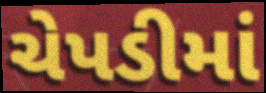
ચેપડીમાં